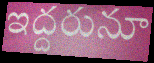
ఇద్దరునూ